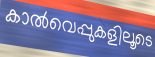
കാൽവെപ്പുകളിലൂടെ